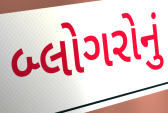
બ્લોગરોનું